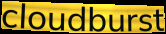
cloudburst